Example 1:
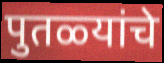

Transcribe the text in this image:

पुतळ्यांचे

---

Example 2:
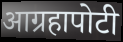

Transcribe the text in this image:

आग्रहापोटी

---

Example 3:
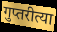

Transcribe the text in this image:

गुप्तरीत्या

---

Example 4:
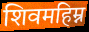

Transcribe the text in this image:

शिवमहिम्न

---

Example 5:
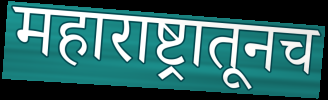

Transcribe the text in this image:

महाराष्ट्रातूनच